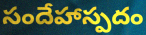
సందేహాస్పదం